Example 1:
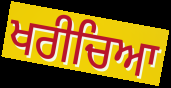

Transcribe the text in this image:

ਖਰੀਚਿਆ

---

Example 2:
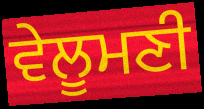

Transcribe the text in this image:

ਵੇਲੂਮਣੀ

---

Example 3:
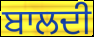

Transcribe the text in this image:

ਬਾਲਦੀ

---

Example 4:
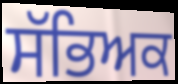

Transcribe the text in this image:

ਸੱਭਿਅਕ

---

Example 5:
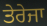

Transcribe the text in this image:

ਤੇਰੇਜਾ